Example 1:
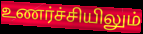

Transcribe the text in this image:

உணர்ச்சியிலும்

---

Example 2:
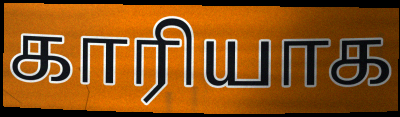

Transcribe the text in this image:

காரியாக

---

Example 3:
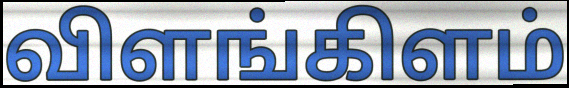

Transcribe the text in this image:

விளங்கிளம்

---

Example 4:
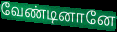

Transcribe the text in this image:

வேண்டினானே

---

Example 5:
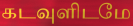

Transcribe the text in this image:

கடவுளிடமே